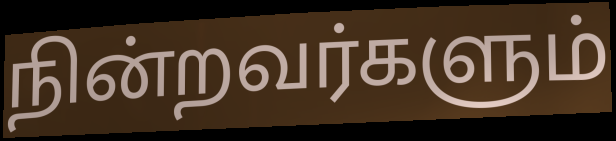
நின்றவர்களும்